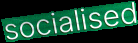
socialised